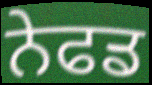
ਨੇਫਡ